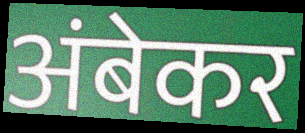
अंबेकर